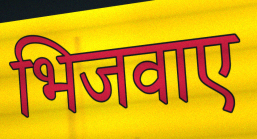
भिजवाए